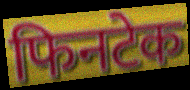
फिनटेक